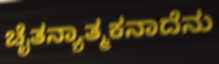
ಚೈತನ್ಯಾತ್ಮಕನಾದೆನು